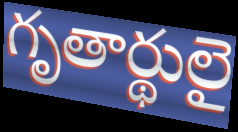
గృతార్థులై